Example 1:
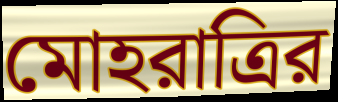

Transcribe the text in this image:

মোহরাত্রির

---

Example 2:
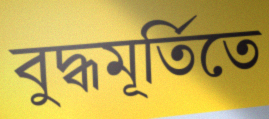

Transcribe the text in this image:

বুদ্ধমূর্তিতে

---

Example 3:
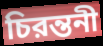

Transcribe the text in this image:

চিরন্তনী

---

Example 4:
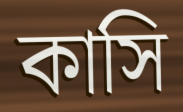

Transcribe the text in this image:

কাসি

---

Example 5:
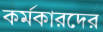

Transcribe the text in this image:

কর্মকারদের